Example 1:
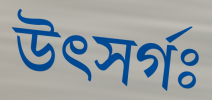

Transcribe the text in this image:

উৎসর্গঃ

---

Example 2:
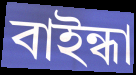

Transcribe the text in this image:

বাইন্ধা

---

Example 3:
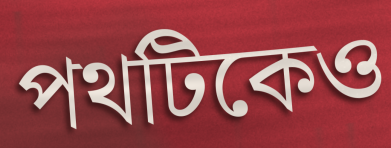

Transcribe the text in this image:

পথটিকেও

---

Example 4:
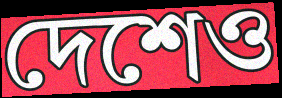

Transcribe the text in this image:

দেশেও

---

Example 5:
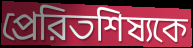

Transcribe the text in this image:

প্রেরিতশিষ্যকে